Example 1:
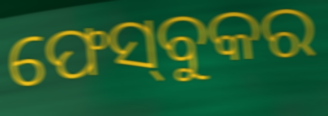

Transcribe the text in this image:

ଫେସ୍‌ବୁକର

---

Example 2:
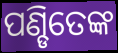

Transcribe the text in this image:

ପଣ୍ଡିତେଙ୍କ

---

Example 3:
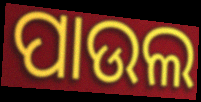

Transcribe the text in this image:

ପାଉଲ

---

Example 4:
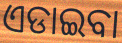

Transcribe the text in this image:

ଏଡାଇବା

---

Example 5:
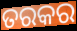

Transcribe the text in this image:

ତରକର